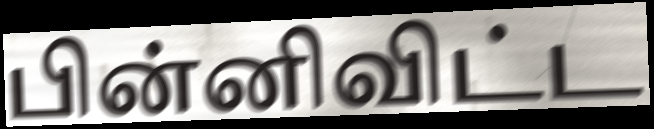
பின்னிவிட்ட